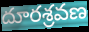
దూరశ్రవణ